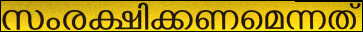
സംരക്ഷിക്കണമെന്നത്